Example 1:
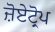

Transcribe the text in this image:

ਜ਼ੋਏਟ੍ਰੋਪ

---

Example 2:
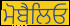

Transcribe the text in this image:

ਮੋਬੈਲਿਓ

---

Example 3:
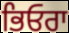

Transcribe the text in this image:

ਭਿਓਰਾ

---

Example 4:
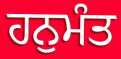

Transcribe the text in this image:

ਹਨੁਮੰਤ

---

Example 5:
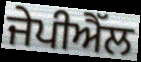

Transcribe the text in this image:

ਜੇਪੀਐੱਲ